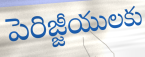
పెరిజ్జీయులకు